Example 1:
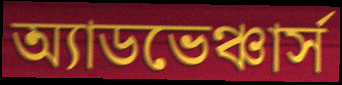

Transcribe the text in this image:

অ্যাডভেঞ্চার্স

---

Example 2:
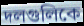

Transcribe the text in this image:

দলগুলিকে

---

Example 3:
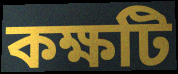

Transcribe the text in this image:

কক্ষটি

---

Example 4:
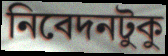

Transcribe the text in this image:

নিবেদনটুকু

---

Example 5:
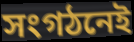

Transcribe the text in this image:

সংগঠনেই